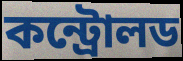
কন্ট্রোলড